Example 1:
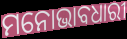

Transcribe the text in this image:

ମନୋଭାବଧାରୀ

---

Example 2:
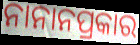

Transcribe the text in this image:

ନାନାନପ୍ରକାର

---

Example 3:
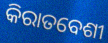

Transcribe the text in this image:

କିରାତବେଶୀ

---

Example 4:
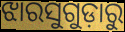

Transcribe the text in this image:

ଝାରସୁଗୁଡ଼ାରୁ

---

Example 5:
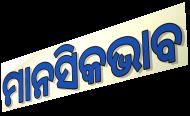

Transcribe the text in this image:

ମାନସିକଭାବ